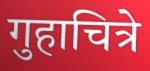
गुहाचित्रे